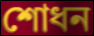
শোধন